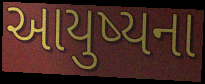
આયુષ્યના